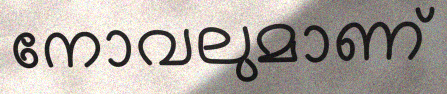
നോവലുമാണ്